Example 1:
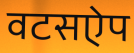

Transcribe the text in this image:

वटसऐप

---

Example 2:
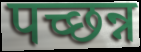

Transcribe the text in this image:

पच्छन्न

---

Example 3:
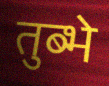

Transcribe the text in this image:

तुब्भे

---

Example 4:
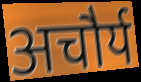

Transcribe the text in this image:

अचौर्य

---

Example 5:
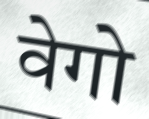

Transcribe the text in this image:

वेगो